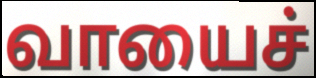
வாயைச்